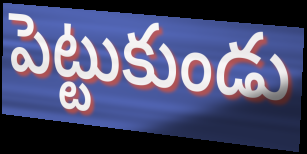
పెట్టుకుండు